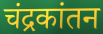
चंद्रकांतन